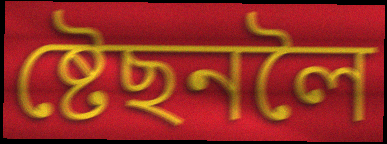
ষ্টেছনলৈ